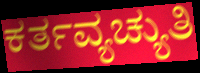
ಕರ್ತವ್ಯಚ್ಯುತಿ